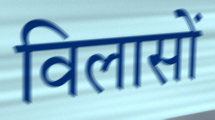
विलासों